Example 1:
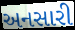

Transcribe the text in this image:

અનસારી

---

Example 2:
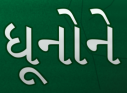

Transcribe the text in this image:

ધૂનોને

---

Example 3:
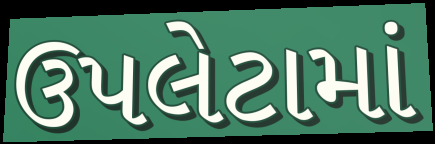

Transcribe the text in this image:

ઉપલેટામાં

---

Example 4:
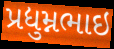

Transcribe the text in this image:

પ્રદ્યુમ્નભાઇ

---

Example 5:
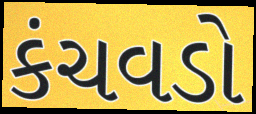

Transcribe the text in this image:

કંચવડો